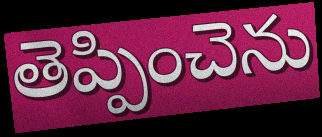
తెప్పించెను